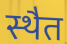
स्थैत